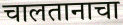
चालतानाचा